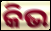
କିଭ